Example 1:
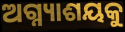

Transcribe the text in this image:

ଅଗ୍ନ୍ୟାଶୟକୁ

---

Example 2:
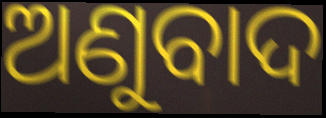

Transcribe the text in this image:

ଅଣୁବାଦ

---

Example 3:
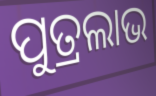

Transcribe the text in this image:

ପୁତ୍ରଲାଭ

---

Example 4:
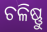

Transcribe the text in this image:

ଚଳିଷ୍ଣୁ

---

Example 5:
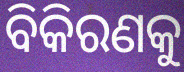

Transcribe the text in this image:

ବିକିରଣକୁ